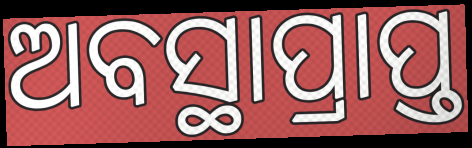
ଅବସ୍ଥାପ୍ରାପ୍ତ